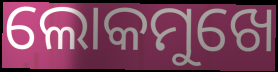
ଲୋକମୁଖେ